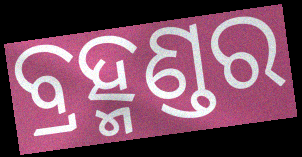
ବ୍ରହ୍ମଣ୍ଡର